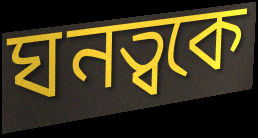
ঘনত্বকে